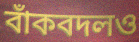
বাঁকবদলও